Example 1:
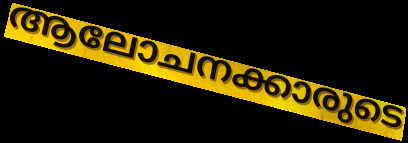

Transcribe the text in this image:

ആലോചനക്കാരുടെ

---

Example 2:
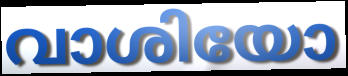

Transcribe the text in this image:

വാശിയോ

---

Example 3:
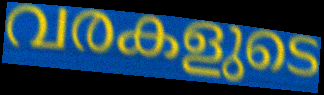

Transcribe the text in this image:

വരകളുടെ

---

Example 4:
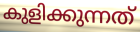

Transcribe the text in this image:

കുളിക്കുന്നത്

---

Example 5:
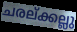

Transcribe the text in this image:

ചരല്ക്കല്ലു